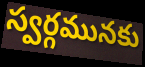
స్వర్గమునకు